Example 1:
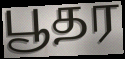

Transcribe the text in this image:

பூதர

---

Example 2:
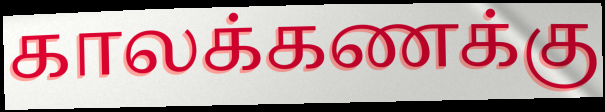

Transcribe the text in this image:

காலக்கணக்கு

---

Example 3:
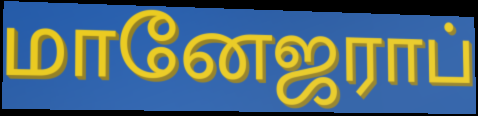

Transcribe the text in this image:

மானேஜராப்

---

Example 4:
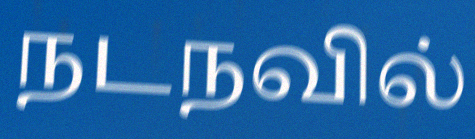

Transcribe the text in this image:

நடநவில்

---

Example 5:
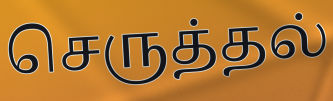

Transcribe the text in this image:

செருத்தல்